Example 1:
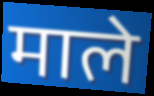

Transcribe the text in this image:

माले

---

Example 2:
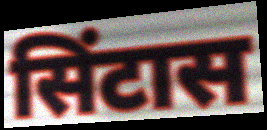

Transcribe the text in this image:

सिंटास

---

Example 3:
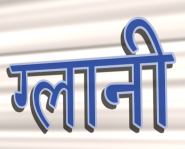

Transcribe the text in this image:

ग्लानी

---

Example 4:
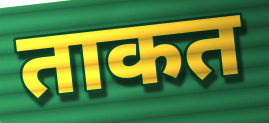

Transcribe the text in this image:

ताकत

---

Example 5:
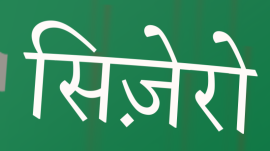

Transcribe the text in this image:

सिज़ेरो